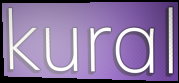
kural